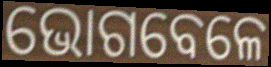
ଭୋଗବେଳେ